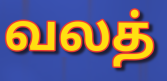
வலத்